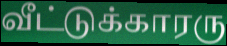
வீட்டுக்காரரு